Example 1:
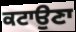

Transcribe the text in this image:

ਕਟਾਉਣਾ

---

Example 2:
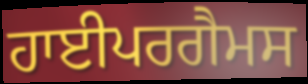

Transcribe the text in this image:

ਹਾਈਪਰਗੈਮਸ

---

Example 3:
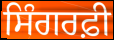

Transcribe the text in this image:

ਸਿੰਗਰਫ਼ੀ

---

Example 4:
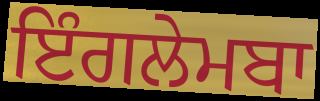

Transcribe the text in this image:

ਇੰਗਲੇਮਬਾ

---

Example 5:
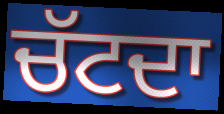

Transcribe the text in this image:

ਚੱਟਦਾ